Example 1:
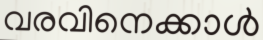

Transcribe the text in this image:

വരവിനെക്കാൾ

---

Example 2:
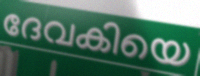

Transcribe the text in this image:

ദേവകിയെ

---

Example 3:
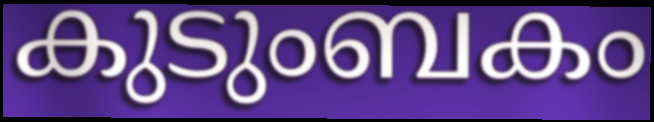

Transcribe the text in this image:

കുടുംബകം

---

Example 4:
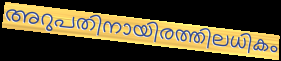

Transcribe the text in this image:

അറുപതിനായിരത്തിലധികം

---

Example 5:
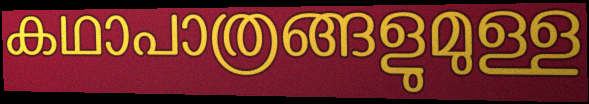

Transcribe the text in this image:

കഥാപാത്രങ്ങളുമുള്ള